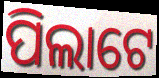
ପିଲାଟେ